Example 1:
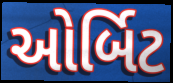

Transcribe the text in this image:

ઓર્બિટ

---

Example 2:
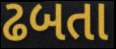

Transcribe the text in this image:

ઢબતા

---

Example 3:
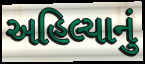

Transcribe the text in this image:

અહિલ્યાનું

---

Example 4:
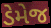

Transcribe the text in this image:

ડેમેજ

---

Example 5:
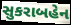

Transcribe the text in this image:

સુકરાબહેન